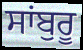
ਸਾਂਬੁਰੂ